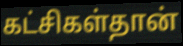
கட்சிகள்தான்